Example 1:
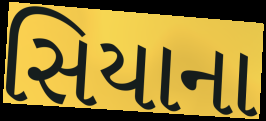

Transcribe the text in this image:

સિયાના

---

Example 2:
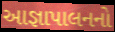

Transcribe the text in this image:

આજ્ઞાપાલનનો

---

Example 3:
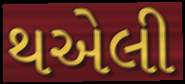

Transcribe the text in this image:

થએલી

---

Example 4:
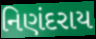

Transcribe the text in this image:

નિણંદરાય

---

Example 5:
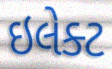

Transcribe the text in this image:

ઇલેક્ટ